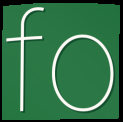
fo